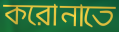
করোনাতে